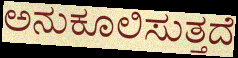
ಅನುಕೂಲಿಸುತ್ತದೆ